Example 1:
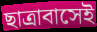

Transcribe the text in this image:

ছাত্রাবাসেই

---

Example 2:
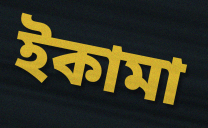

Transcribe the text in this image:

ইকামা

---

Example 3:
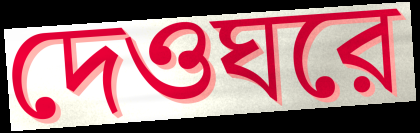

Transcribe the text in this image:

দেওঘরে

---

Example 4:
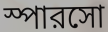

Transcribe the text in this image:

স্পারসো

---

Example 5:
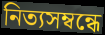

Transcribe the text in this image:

নিত্যসম্বন্ধে